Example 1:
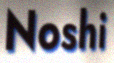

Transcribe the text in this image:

Noshi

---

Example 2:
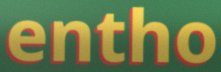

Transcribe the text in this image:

entho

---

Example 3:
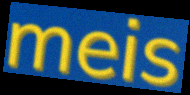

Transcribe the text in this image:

meis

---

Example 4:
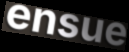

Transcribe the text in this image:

ensue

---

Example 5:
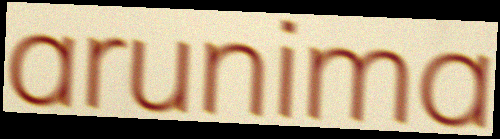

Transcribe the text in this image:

arunima